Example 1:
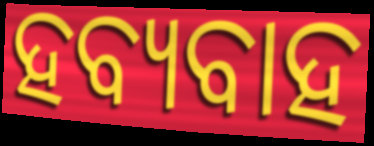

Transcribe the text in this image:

ହବ୍ୟବାହ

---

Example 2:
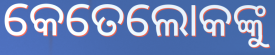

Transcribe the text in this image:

କେତେଲୋକଙ୍କୁ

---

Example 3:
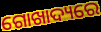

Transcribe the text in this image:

ଗୋଖାଦ୍ୟରେ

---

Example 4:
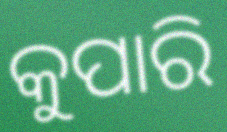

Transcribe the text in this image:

କୁପାରି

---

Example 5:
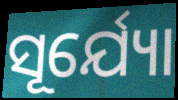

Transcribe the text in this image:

ସୂର୍ଯ୍ୟୋ